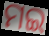
ମଇ